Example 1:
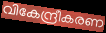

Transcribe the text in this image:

വികേന്ദ്രീകരണ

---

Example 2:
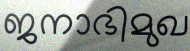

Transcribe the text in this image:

ജനാഭിമുഖ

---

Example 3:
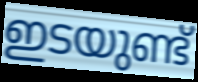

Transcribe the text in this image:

ഇടയുണ്ട്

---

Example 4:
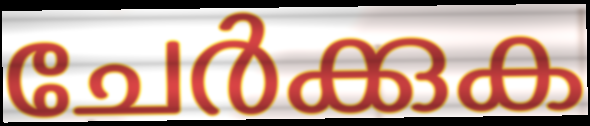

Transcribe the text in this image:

ചേർക്കുക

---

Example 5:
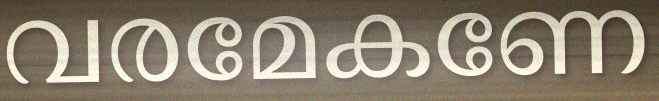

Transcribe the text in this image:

വരമേകണേ